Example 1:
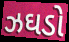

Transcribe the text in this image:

ઝઘડો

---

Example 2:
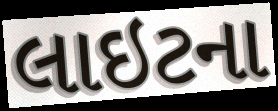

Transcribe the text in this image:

લાઇટના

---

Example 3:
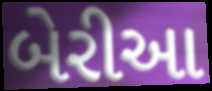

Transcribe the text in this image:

બેરીઆ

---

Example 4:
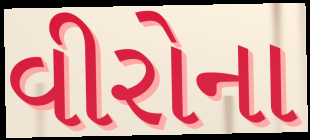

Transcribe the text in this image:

વીરોના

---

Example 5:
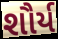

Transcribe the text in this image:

શૌર્ય